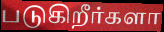
படுகிறீர்களா